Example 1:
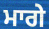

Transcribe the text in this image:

ਮਾਗੇ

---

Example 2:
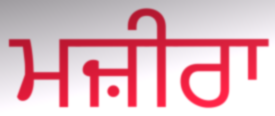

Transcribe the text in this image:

ਮਜ਼ੀਰਾ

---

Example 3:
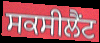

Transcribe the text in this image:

ਸਕਸੀਲੈਂਟ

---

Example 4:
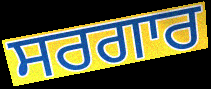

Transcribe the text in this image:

ਸਰਗਾਰ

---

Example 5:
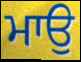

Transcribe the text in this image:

ਮਾਉ